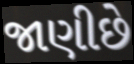
જાણીછે